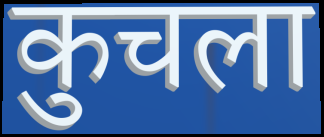
कुचला